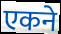
एकने